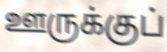
ஊருக்குப்